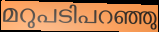
മറുപടിപറഞ്ഞു